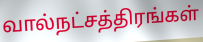
வால்நட்சத்திரங்கள்